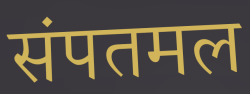
संपतमल